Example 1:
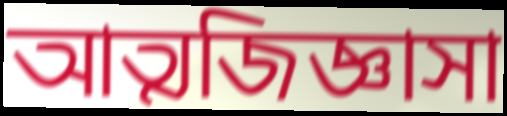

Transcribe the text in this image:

আত্মজিজ্ঞাসা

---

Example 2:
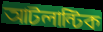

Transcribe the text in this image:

আটলান্টিক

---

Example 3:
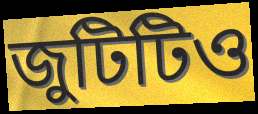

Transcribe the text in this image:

জুটিটিও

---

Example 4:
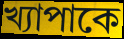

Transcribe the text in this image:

খ্যাপাকে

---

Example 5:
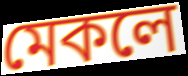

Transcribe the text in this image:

মেকলে